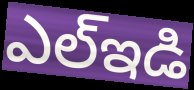
ఎల్ఇడి